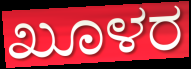
ಖೂಳರ